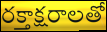
రక్తాక్షరాలతో